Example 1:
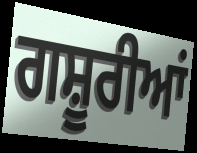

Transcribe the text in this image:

ਗਸ਼ੂਰੀਆਂ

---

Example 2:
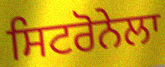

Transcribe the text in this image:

ਸਿਟਰੋਨੇਲਾ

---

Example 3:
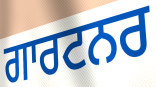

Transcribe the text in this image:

ਗਾਰਟਨਰ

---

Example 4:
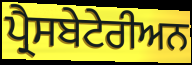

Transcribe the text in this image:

ਪ੍ਰੈਸਬੇਟੇਰੀਅਨ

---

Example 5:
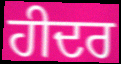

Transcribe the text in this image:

ਹੀਦਰ